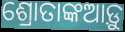
ଶ୍ରୋତାଙ୍କଆଡ଼ୁ